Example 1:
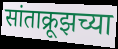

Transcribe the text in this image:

सांताक्रूझच्या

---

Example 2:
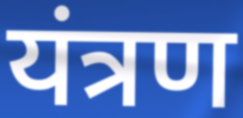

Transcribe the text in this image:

यंत्रण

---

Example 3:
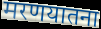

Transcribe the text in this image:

मरणयातना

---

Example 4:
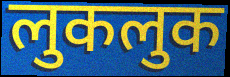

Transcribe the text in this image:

लुकलुक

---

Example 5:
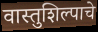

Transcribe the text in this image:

वास्तुशिल्पाचे